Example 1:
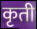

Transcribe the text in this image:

कृती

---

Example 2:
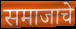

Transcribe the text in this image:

समाजाचे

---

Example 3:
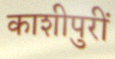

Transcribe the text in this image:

काशीपुरीं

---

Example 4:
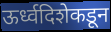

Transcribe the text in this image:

ऊर्ध्वदिशेकडून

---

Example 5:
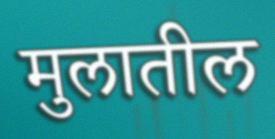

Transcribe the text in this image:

मुलातील